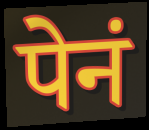
पेनं